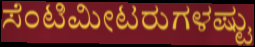
ಸೆಂಟಿಮೀಟರುಗಳಷ್ಟು